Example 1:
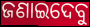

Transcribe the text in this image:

ଜଣାଇଦେବୁ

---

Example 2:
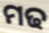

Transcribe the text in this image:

ମଢ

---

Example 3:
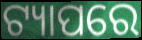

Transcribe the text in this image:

ଟ୍ୟାପରେ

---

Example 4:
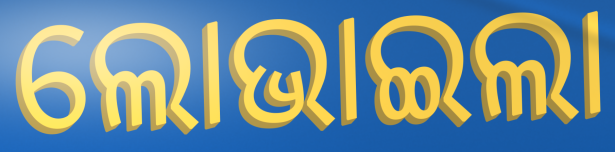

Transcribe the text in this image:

ଲୋଭାଇଲା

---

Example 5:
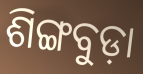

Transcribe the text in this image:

ଶିଙ୍ଗବୁଡ଼ା